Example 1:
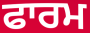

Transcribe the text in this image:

ਫਾਰਮ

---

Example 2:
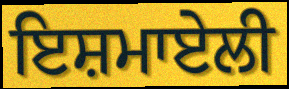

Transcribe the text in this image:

ਇਸ਼ਮਾਏਲੀ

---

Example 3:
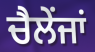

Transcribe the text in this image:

ਚੈਲੇਂਜਾਂ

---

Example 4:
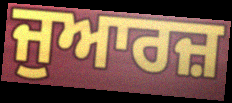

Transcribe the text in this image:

ਜੁਆਰਜ਼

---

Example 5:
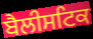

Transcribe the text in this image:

ਬੈਲੀਸਟਿਕ